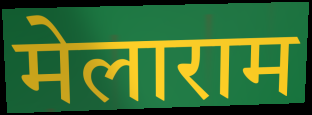
मेलाराम